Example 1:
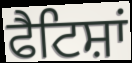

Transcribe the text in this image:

ਫੈਟਿਸ਼ਾਂ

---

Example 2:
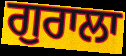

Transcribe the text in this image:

ਗੁਰਾਲਾ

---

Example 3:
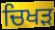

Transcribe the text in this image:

ਚਿਖੜ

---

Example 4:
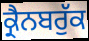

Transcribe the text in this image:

ਕ੍ਰੈਨਬਰੁੱਕ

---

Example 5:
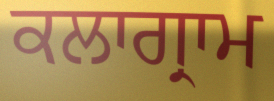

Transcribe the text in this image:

ਕਲਾਗ੍ਰਾਮ